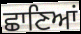
ਛਾਣਿਆਂ